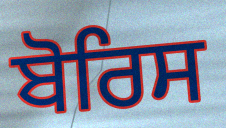
ਬੋਰਿਸ